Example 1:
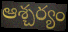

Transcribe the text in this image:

ఆశ్చర్యం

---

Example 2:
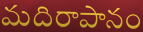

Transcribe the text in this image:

మదిరాపానం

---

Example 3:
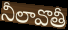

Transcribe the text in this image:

నీలావొతీ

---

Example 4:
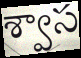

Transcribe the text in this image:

శ్వాస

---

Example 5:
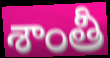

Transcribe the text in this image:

శాంతీ